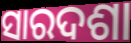
ସାରଦଶା